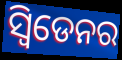
ସ୍ୱିଡେନର